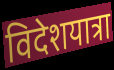
विदेशयात्रा